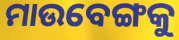
ମାଉବେଙ୍ଗକୁ